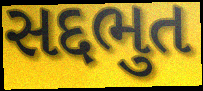
સદ્દભુત